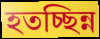
হতচ্ছিন্ন